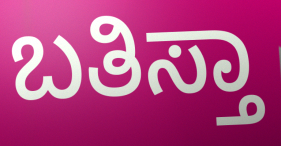
ಬತಿಸ್ತಾ